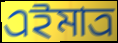
এইমাত্ৰ